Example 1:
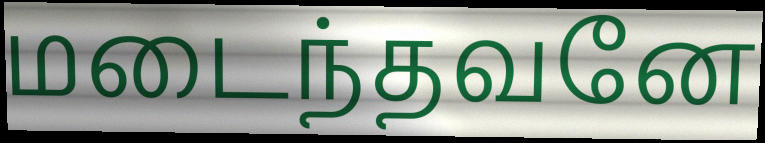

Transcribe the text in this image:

மடைந்தவனே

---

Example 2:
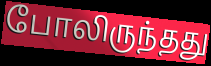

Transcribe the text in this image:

போலிருந்தது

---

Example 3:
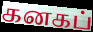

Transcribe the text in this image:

கனகப்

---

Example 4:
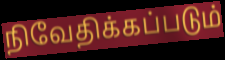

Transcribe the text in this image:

நிவேதிக்கப்படும்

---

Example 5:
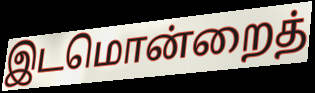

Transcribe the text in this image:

இடமொன்றைத்